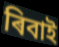
ৰিবাই